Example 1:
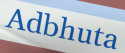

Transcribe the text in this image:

Adbhuta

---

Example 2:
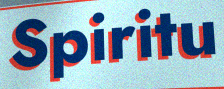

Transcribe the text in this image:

Spiritu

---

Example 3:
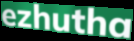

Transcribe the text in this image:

ezhutha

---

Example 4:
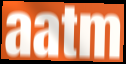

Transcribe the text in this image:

aatm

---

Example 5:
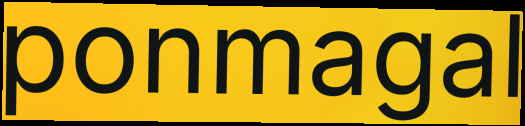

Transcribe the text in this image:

ponmagal